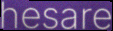
hesare